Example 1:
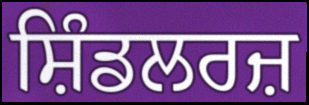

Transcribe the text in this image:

ਸ਼ਿੰਡਲਰਜ਼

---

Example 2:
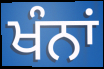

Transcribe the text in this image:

ਖੰਨਾਂ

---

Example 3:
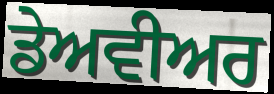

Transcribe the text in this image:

ਡੇਅਵੀਅਰ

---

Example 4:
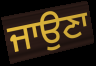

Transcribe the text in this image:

ਜਾਉਣਾ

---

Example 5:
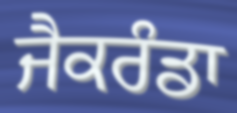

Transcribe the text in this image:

ਜੈਕਰੰਡਾ